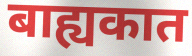
बाह्यकात